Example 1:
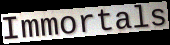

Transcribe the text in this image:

Immortals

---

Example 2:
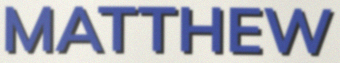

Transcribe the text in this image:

MATTHEW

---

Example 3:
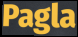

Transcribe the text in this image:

Pagla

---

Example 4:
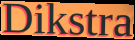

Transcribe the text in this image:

Dikstra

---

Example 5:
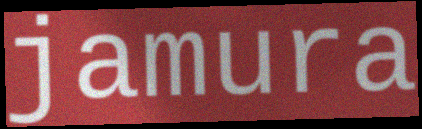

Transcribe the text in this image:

jamura